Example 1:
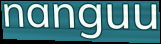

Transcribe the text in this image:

nanguu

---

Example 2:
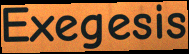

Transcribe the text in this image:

Exegesis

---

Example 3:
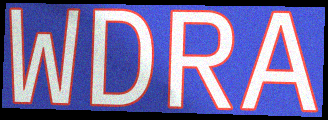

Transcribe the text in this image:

WDRA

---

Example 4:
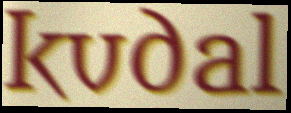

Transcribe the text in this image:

kudal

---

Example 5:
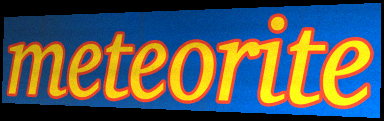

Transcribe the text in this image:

meteorite